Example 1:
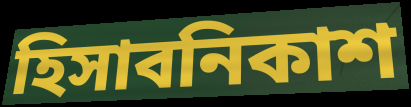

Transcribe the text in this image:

হিসাবনিকাশ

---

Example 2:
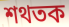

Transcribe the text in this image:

শথতক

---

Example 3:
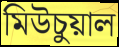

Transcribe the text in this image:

মিউচুয়াল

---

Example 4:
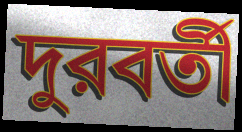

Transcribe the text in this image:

দুরবর্তী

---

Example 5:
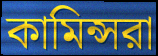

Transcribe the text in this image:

কামিন্সরা